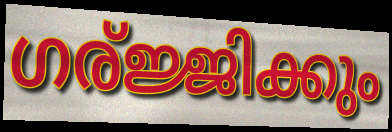
ഗര്ജ്ജിക്കും